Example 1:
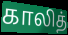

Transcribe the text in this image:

காலித்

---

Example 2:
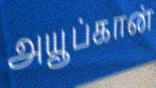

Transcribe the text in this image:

அயூப்கான்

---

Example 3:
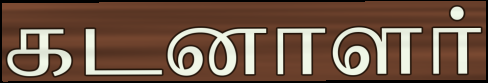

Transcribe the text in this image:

கடனாளர்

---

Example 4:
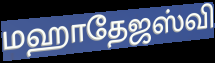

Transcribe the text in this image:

மஹாதேஜஸ்வி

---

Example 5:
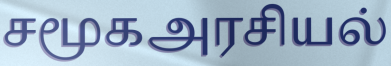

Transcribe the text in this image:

சமூகஅரசியல்